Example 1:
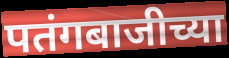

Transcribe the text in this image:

पतंगबाजीच्या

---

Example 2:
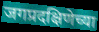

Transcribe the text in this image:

जगप्रदक्षिणेच्या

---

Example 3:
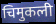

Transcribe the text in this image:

चिमुकली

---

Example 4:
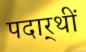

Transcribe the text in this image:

पदार्थीं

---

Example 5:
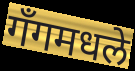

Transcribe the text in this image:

गँगमधले